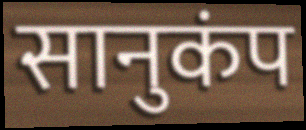
सानुकंप